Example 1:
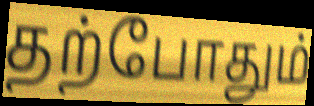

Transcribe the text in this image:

தற்போதும்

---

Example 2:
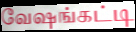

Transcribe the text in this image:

வேஷங்கட்டி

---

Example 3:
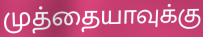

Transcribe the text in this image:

முத்தையாவுக்கு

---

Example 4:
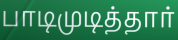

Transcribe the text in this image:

பாடிமுடித்தார்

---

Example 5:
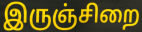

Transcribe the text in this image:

இருஞ்சிறை